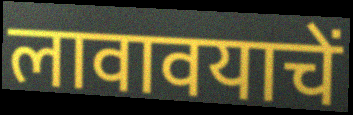
लावावयाचें